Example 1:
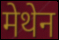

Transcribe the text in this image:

मेथेन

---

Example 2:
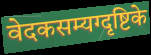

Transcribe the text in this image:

वेदकसम्यग्दृष्टिके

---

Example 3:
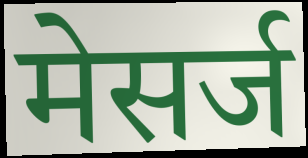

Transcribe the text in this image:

मेसर्ज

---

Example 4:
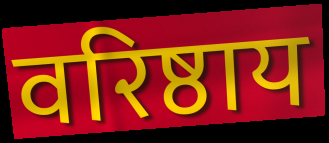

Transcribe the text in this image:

वरिष्ठाय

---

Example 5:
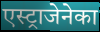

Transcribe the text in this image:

एस्‍ट्राजेनेका